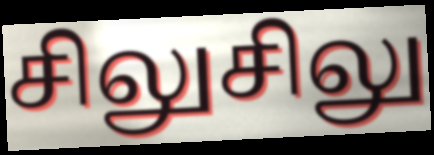
சிலுசிலு